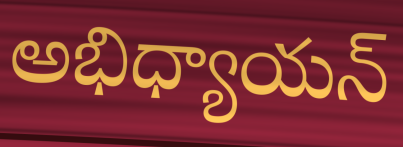
అభిధ్యాయన్